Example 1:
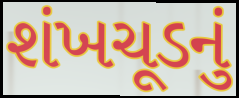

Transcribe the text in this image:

શંખચૂડનું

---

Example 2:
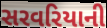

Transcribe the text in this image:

સરવરિયાની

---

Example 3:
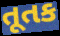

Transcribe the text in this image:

તૂતક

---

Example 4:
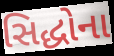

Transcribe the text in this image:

સિદ્ધોના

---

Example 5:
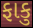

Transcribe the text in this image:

ફાકુ